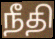
நீதி